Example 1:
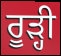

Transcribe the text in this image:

ਰੂੜ੍ਹੀ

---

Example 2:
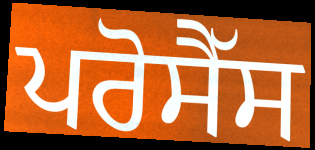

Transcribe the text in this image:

ਪਰੋਸੈੱਸ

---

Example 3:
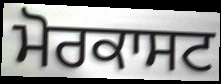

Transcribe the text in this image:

ਮੋਰਕਾਸਟ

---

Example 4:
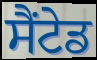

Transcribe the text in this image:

ਸੈਂਟੇਡ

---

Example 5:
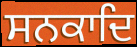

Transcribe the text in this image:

ਸਨਕਾਦਿ